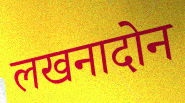
लखनादोन